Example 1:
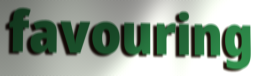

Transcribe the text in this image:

favouring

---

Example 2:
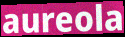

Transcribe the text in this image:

aureola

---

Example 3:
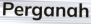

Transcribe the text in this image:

Perganah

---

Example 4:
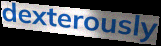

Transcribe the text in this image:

dexterously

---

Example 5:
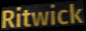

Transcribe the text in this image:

Ritwick